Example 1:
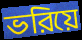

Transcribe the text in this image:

ভরিয়ে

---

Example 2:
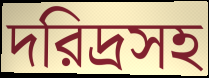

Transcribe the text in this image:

দরিদ্রসহ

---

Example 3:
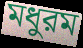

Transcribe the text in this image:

মধুরম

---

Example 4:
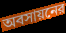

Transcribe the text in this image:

অবসায়নের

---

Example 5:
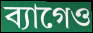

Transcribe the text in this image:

ব্যাগেও